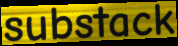
substack